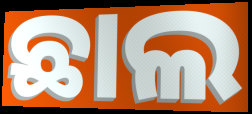
ଛାଲ